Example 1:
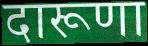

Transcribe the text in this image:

दारूणा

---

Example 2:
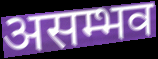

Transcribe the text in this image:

असम्‍भव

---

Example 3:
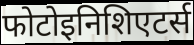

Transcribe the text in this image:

फोटोइनिशिएटर्स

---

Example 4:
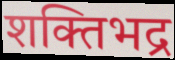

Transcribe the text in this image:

शक्तिभद्र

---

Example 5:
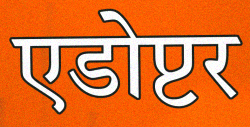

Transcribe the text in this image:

एडोप्टर